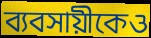
ব্যবসায়ীকেও